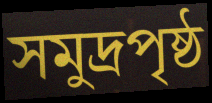
সমুদ্রপৃষ্ঠ